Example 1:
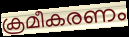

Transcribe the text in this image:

ക്രമീകരണം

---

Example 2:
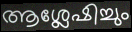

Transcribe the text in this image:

ആശ്ലേഷിച്ചും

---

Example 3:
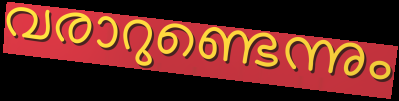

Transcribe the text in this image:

വരാറുണ്ടെന്നും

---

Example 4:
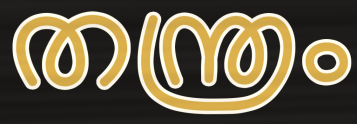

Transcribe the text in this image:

തന്ത്രം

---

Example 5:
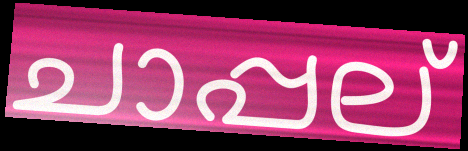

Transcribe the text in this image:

ചാപ്പല്